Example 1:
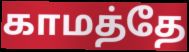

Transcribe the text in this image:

காமத்தே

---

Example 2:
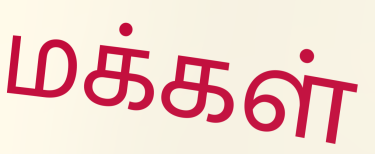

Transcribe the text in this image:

மக்கள்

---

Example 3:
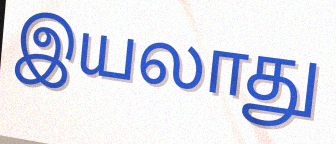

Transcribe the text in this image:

இயலாது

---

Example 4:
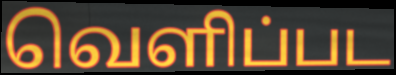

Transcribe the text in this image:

வெளிப்பட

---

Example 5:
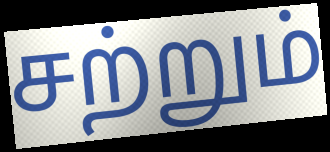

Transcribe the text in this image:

சற்றும்